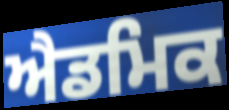
ਐਡਮਿਕ